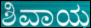
ಶಿವಾಯ